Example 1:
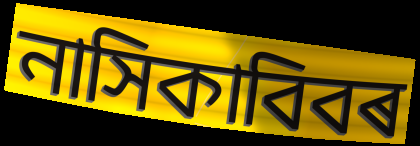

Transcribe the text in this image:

নাসিকাবিবৰ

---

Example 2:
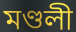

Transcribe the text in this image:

মণ্ডলী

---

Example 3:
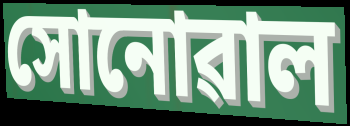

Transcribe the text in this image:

সোনোৱাল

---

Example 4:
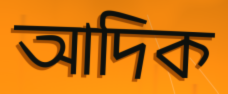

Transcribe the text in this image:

আদিক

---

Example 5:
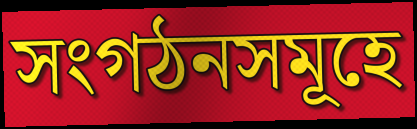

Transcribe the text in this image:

সংগঠনসমূহে